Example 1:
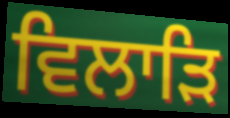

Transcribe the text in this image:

ਵਿਲਾੜਿ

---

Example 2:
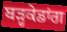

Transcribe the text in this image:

ਬੜ੍ਹਕੇਡਾਂਗ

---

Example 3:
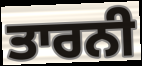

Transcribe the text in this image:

ਤਾਰਨੀ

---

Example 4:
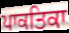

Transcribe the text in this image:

ਪਾਕਤਿਕਾ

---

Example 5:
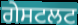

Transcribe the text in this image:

ਗੇਸਟਲਟ